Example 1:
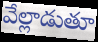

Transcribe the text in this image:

వేల్లాడుతూ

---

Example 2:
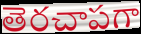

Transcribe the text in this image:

తెరచాపగా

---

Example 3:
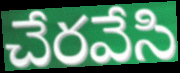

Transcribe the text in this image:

చేరవేసి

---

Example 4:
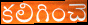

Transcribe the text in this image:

కలిగించె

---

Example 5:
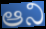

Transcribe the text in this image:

ఆని